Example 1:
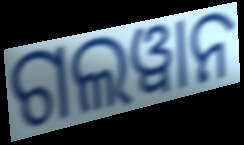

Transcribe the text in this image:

ଗଲୱାନ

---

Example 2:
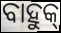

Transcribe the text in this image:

ବାହୁକ୍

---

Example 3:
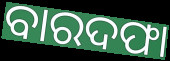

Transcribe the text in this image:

ବାରଦଫା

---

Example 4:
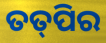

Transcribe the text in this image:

ତତ୍‌ପିର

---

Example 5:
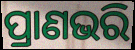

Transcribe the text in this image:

ପ୍ରାଣଭରି